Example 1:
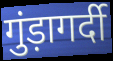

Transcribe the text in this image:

गुंड़ागर्दी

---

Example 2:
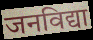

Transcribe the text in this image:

जनविद्या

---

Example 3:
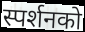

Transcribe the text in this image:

स्पर्शनको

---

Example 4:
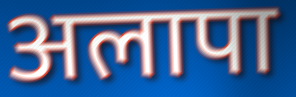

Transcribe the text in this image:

अलापा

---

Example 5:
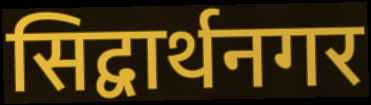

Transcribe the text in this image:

सिद्वार्थनगर